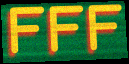
FFF